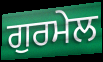
ਗੁਰਮੇਲ